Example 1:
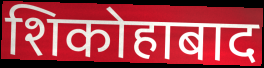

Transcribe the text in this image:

शिकोहाबाद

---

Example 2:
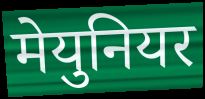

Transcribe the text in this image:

मेयुनियर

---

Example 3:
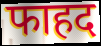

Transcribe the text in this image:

फाहद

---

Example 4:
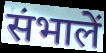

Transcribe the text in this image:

संभालें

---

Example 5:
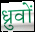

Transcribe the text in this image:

ध्रुवों